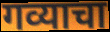
गव्याचा